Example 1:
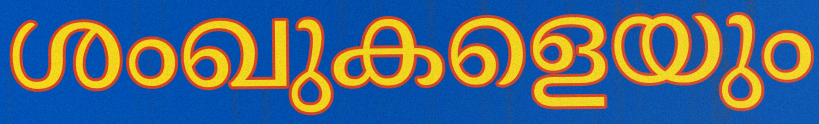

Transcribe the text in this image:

ശംഖുകളെയും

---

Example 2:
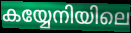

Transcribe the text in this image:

കയ്യേനിയിലെ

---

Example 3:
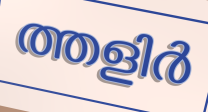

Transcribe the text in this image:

ത്തളിർ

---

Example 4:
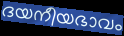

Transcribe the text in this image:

ദയനീയഭാവം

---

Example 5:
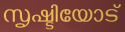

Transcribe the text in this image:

സൃഷ്ടിയോട്